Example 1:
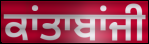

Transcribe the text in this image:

ਕਾਂਤਾਬਾਂਜੀ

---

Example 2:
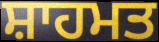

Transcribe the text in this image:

ਸ਼ਾਹਮਤ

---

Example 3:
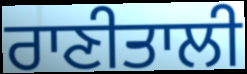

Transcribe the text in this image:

ਰਾਣੀਤਾਲੀ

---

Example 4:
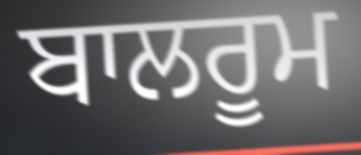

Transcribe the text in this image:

ਬਾਲਰੂਮ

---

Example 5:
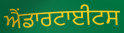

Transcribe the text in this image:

ਐਂਡਾਰਟਾਈਟਸ